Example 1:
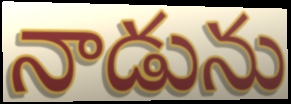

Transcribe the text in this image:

నాడును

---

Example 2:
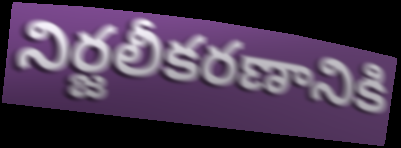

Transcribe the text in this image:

నిర్జలీకరణానికి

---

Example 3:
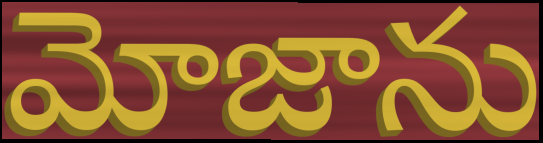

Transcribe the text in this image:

మోజాను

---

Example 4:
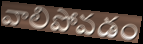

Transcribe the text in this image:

వాలిపోవడం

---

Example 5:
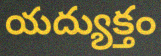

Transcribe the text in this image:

యద్యుక్తం